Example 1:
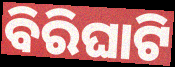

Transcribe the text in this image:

ବିରିଘାଟି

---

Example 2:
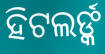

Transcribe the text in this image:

ହିଟଲର୍ଙ୍କ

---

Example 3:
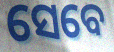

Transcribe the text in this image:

ସେବେ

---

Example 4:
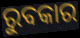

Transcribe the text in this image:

ରୁବକାର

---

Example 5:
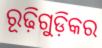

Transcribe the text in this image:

ରୂଢ଼ିଗୁଡ଼ିକର